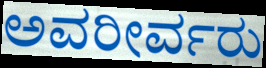
ಅವರೀರ್ವರು